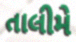
તાલીમે